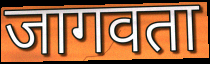
जागवता